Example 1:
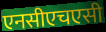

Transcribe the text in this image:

एनसीएचएसी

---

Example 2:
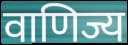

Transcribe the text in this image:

वाणिज्य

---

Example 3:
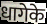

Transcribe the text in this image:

धागेके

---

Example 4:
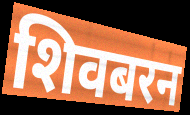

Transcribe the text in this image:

शिवबरन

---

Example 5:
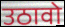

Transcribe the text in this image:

उठावो